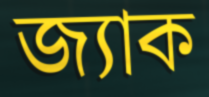
জ্যাক